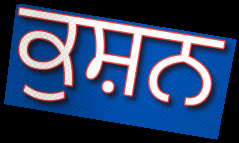
ਕੁਸ਼ਨ